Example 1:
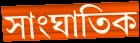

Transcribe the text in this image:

সাংঘাতিক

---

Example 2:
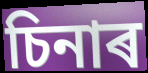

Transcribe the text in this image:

চিনাৰ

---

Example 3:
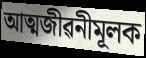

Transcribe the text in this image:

আত্মজীৱনীমূলক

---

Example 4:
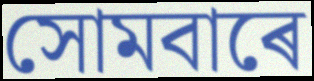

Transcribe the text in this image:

সোমবাৰে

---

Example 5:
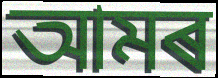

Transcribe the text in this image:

আমৰ